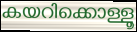
കയറിക്കൊള്ളൂ